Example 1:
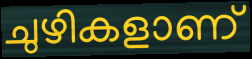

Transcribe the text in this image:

ചുഴികളാണ്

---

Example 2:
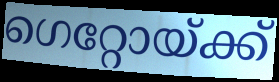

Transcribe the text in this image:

ഗെറ്റോയ്ക്ക്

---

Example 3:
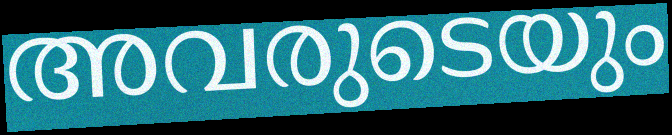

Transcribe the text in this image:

അവരുടെയും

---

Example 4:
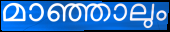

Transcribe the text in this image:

മാഞ്ഞാലും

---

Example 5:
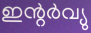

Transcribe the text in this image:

ഇന്റർവ്യു